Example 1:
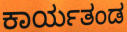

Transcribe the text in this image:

ಕಾರ್ಯತಂಡ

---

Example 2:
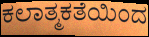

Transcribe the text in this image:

ಕಲಾತ್ಮಕತೆಯಿಂದ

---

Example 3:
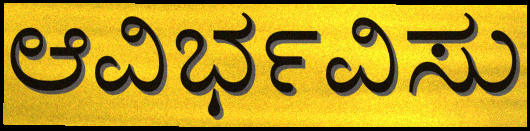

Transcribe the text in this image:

ಆವಿರ್ಭವಿಸು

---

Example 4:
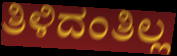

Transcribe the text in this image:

ತಿಳಿದಂತಿಲ್ಲ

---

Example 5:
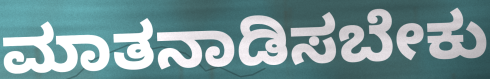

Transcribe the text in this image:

ಮಾತನಾಡಿಸಬೇಕು